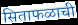
सिताफळाची